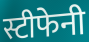
स्टीफेनी